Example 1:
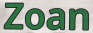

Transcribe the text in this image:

Zoan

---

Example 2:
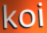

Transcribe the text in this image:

koi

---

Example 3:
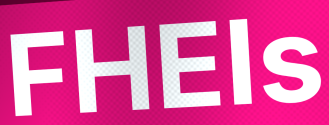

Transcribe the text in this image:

FHEIs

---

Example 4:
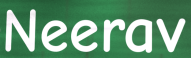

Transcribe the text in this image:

Neerav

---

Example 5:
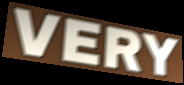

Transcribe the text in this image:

VERY